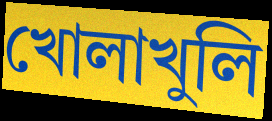
খোলাখুলি